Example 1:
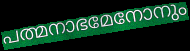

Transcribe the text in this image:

പത്മനാഭമേനോനും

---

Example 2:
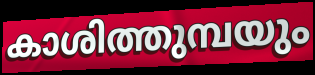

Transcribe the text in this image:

കാശിത്തുമ്പയും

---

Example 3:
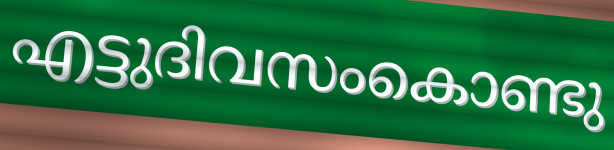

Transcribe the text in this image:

എട്ടുദിവസംകൊണ്ടു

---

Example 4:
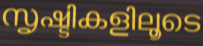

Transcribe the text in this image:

സൃഷ്ടികളിലൂടെ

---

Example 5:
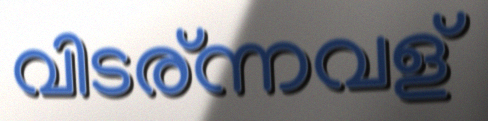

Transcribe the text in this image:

വിടര്ന്നവള്